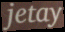
jetay